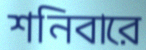
শনিবারে